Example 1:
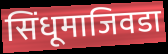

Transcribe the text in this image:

सिंधूमाजिवडा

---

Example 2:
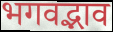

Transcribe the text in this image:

भगवद्भाव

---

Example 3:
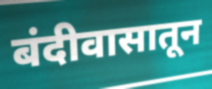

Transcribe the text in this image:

बंदीवासातून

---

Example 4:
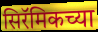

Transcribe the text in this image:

सिरॅमिकच्या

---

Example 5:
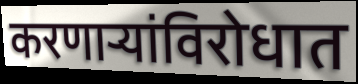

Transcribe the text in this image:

करणाऱ्यांविरोधात